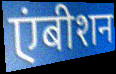
एंबीशन